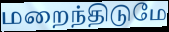
மறைந்திடுமே